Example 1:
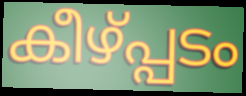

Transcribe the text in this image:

കീഴ്പ്പടം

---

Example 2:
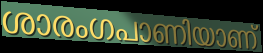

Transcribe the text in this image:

ശാരംഗപാണിയാണ്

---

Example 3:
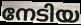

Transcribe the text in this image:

നേടിയ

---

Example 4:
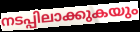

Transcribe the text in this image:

നടപ്പിലാക്കുകയും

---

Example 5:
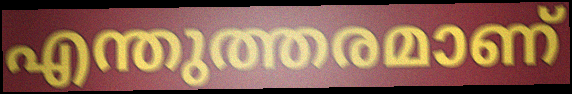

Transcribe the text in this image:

എന്തുത്തരമാണ്